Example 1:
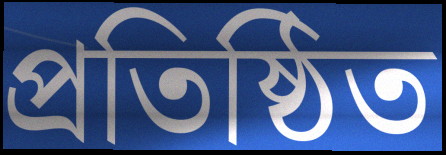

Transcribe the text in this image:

প্ৰতিষ্ঠিত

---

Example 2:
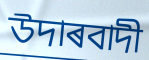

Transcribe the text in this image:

উদাৰবাদী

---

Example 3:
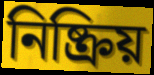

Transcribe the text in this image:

নিষ্ক্ৰিয়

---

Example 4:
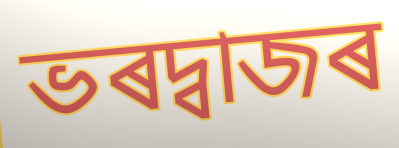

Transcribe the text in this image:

ভৰদ্বাজৰ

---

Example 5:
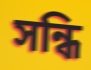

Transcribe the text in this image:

সন্ধি